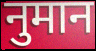
नुमान